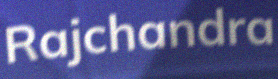
Rajchandra